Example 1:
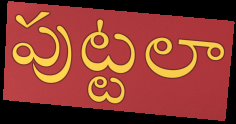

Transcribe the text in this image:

పుట్టలా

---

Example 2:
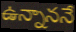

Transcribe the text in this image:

ఉన్నాననే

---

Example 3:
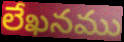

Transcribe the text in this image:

లేఖనము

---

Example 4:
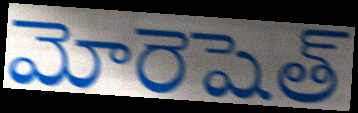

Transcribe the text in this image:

మోరెషెత్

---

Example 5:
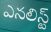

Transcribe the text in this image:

ఎనలిస్ట్